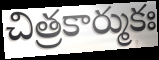
చిత్రకార్ముకః